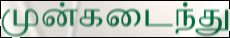
முன்கடைந்து